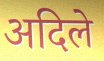
अदिले